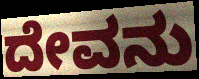
ದೇವನು